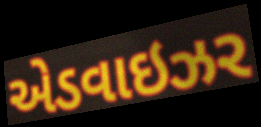
એડવાઇઝર